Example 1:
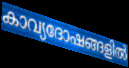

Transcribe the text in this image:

കാവ്യദോഷങ്ങളിൽ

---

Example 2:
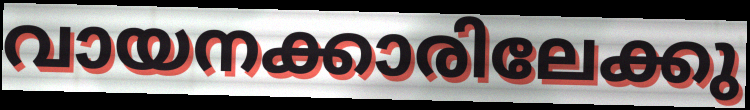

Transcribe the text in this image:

വായനക്കാരിലേക്കു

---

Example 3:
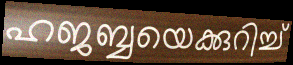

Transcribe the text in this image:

ഹജബ്ബയെക്കുറിച്ച്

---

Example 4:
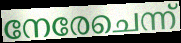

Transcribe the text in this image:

നേരേചെന്ന്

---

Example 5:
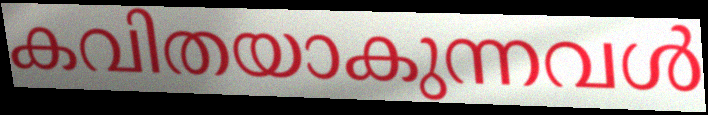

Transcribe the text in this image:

കവിതയാകുന്നവൾ